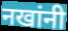
नखांनी